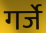
गर्जे